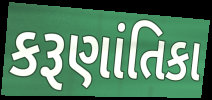
કરૂણાંતિકા